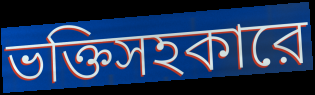
ভক্তিসহকারে